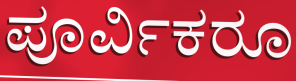
ಪೂರ್ವಿಕರೂ